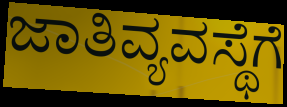
ಜಾತಿವ್ಯವಸ್ಥೆಗೆ